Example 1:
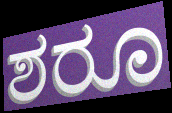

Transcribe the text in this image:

ಶರೂ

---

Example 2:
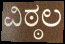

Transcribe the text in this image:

ವಿಠ್ಠಲ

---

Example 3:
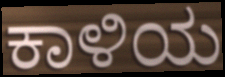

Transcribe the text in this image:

ಕಾಳಿಯ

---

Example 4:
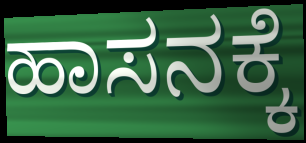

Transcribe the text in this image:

ಹಾಸನಕ್ಕೆ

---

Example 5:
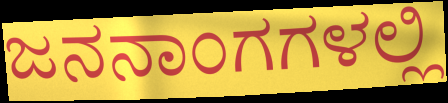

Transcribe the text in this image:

ಜನನಾಂಗಗಳಲ್ಲಿ